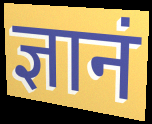
ज्ञानं